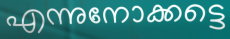
എന്നുനോക്കട്ടെ